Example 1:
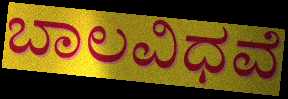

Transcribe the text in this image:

ಬಾಲವಿಧವೆ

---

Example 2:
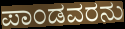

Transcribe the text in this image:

ಪಾಂಡವರನು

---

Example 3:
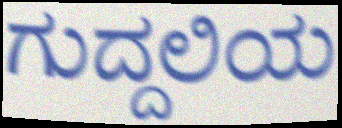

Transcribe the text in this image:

ಗುದ್ದಲಿಯ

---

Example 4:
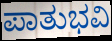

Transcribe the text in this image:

ಪಾತುಭವಿ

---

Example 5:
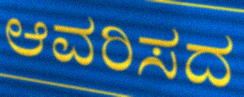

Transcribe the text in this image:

ಆವರಿಸದ